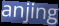
anjing